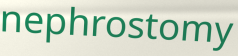
nephrostomy